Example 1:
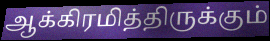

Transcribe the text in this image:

ஆக்கிரமித்திருக்கும்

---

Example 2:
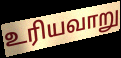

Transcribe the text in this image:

உரியவாறு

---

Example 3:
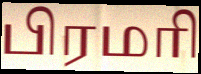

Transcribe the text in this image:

பிரமரி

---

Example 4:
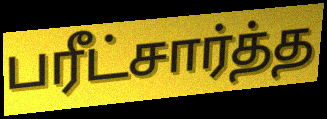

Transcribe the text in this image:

பரீட்சார்த்த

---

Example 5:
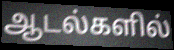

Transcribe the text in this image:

ஆடல்களில்